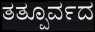
ತತ್ಪೂರ್ವದ